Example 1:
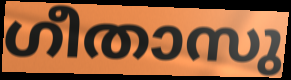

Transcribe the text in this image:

ഗീതാസു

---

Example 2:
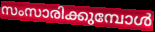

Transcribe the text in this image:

സംസാരിക്കുമ്പോൾ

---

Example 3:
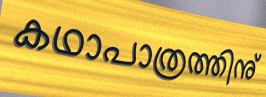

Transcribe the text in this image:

കഥാപാത്രത്തിനു്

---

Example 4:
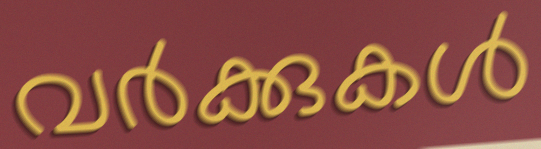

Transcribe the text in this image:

വർക്കുകൾ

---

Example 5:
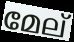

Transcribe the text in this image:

മേല്